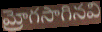
మ్రోగసాగినవి